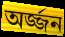
অর্জ্জন